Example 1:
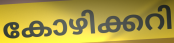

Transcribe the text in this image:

കോഴിക്കറി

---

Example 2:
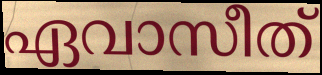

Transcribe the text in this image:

ഏവാസീത്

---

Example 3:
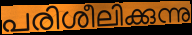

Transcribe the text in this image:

പരിശീലിക്കുന്നു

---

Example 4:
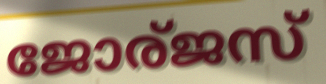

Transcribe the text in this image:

ജോര്ജസ്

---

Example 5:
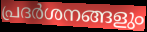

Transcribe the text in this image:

പ്രദർശനങ്ങളും